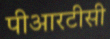
पीआरटीसी